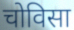
चोविसा